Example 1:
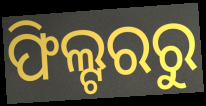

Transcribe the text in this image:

ଫିଲ୍ଟରରୁ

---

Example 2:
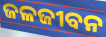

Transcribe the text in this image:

ଜଳଜୀବନ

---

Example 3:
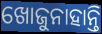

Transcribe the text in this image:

ଖୋଜୁନାହାନ୍ତି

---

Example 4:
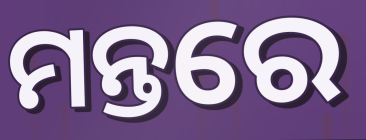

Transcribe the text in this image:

ମନ୍ତରେ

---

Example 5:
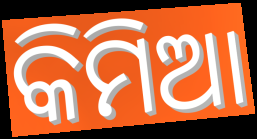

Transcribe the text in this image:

କିମିଆ